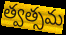
త్వత్సమ